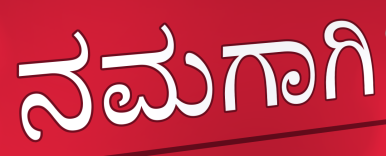
ನಮಗಾಗಿ